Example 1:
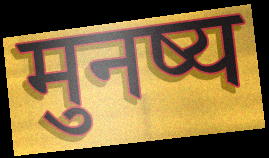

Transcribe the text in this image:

मुनष्य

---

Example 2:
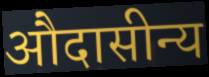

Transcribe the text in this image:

औदासीन्य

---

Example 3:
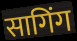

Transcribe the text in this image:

सागिंग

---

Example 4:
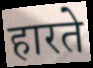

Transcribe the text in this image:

हारते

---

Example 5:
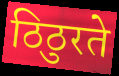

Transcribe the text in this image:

ठिठुरते